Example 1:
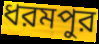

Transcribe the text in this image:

ধরমপুর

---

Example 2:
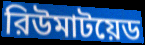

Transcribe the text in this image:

রিউমাটয়েড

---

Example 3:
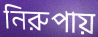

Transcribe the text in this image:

নিরুপায়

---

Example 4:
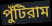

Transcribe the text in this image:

পুঁটিরাম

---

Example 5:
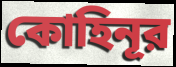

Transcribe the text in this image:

কোহিনূর